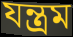
যন্ত্রম